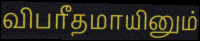
விபரீதமாயினும்